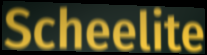
Scheelite